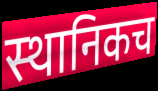
स्थानिकच